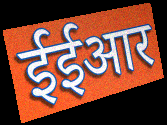
ईईआर